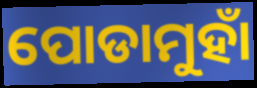
ପୋଡାମୁହାଁ